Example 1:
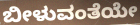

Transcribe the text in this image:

ಬೀಳುವಂತೆಯೇ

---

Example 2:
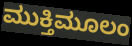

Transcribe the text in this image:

ಮುಕ್ತಿಮೂಲಂ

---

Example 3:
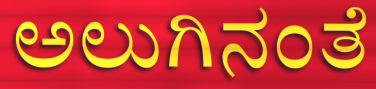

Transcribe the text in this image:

ಅಲುಗಿನಂತೆ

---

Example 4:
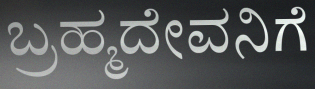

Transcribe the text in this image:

ಬ್ರಹ್ಮದೇವನಿಗೆ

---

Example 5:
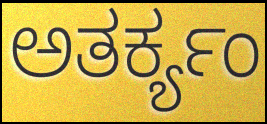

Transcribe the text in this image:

ಅತರ್ಕ್ಯಂ